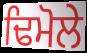
ਢਿਮੋਲੇ